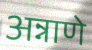
अन्नाणे